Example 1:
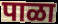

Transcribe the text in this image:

पाळा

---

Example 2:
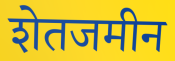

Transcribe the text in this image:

शेतजमीन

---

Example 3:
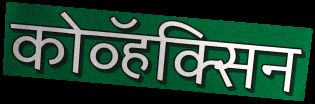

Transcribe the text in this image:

कोव्हॅक्सिन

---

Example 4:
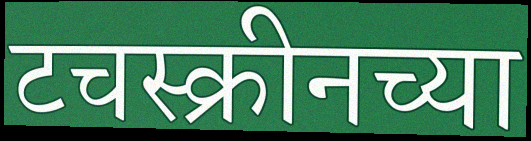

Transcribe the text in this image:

टचस्क्रीनच्या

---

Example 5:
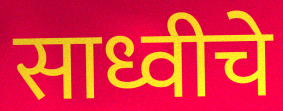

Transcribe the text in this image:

साध्वीचे